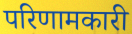
परिणामकारी